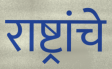
राष्ट्रांचे